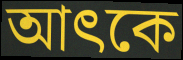
আৎকে